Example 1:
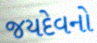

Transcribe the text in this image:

જયદેવનો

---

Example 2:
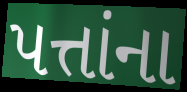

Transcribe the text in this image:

પત્તાંના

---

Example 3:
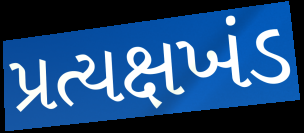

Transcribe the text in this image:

પ્રત્યક્ષખંડ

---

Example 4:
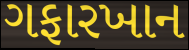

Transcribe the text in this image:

ગફારખાન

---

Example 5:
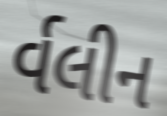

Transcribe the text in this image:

ર્વલીન